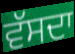
ਵੱਸਦਾ